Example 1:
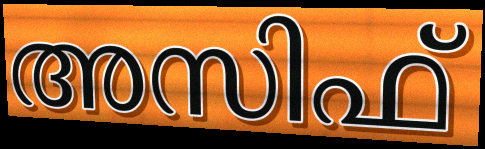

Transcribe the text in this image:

അസിഫ്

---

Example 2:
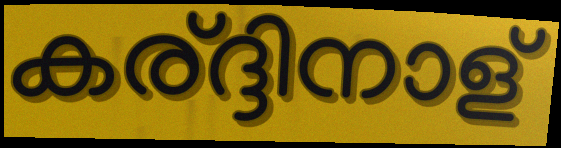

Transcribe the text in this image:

കര്ദ്ദിനാള്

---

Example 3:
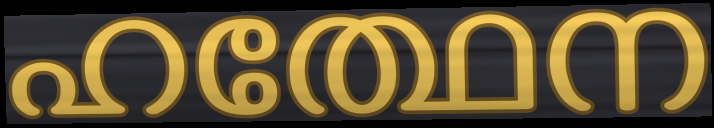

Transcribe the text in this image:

ഹത്ഥേന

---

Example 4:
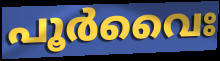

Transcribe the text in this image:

പൂർവൈഃ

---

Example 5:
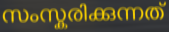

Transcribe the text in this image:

സംസ്കരിക്കുന്നത്